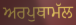
ਅਰਪੁਥਾਮੱਲ